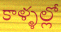
కాళ్ళల్లో